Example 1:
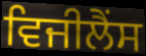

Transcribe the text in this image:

ਵਿਜੀਲੈਂਸ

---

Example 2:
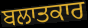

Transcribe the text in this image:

ਬਲਾਤਕਾਰ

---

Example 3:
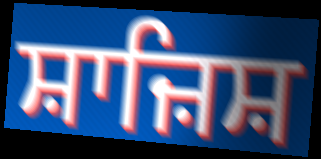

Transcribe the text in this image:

ਸ਼ਾਜ਼ਿਸ਼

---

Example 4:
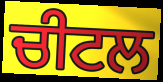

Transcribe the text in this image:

ਚੀਟਲ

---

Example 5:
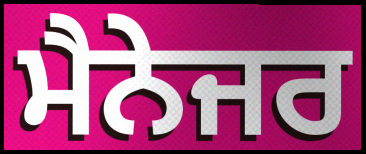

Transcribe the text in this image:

ਮੈਨੇਜਰ